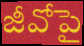
జీవోపై